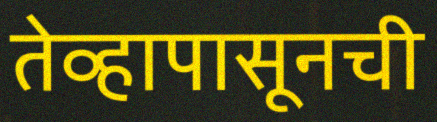
तेव्हापासूनची